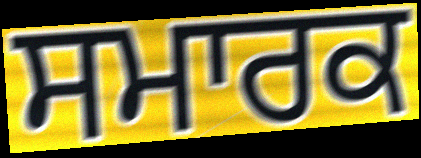
ਸਮਾਰਕ